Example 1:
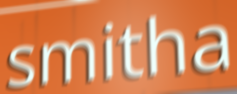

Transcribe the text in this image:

smitha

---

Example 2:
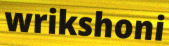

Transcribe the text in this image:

wrikshoni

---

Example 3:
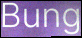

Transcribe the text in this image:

Bung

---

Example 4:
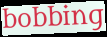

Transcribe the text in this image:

bobbing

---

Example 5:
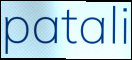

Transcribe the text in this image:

patali